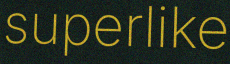
superlike